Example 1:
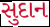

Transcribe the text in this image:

સુદાન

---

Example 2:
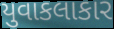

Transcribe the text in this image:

યુવાકલાકાર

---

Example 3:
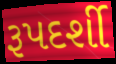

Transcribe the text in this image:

રૂપદર્શી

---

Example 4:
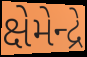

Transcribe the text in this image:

ક્ષેમેન્દ્રે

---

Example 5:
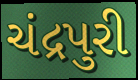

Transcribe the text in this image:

ચંદ્રપુરી